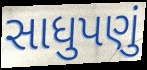
સાધુપણું